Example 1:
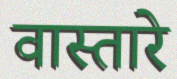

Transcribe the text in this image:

वास्तारे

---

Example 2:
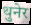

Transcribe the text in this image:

थुनेर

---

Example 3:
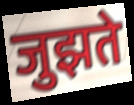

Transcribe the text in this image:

जुझते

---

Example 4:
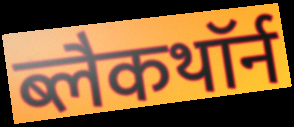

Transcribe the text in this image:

ब्लैकथॉर्न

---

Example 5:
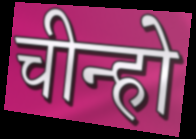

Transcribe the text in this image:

चीन्हो